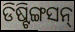
ଡିଷ୍ଟିଙ୍ଗସନ୍